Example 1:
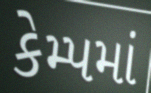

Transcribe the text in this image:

કેમ્પમાં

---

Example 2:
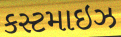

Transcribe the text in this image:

કસ્ટમાઇઝ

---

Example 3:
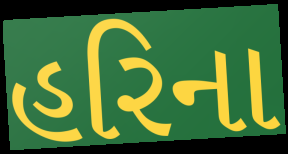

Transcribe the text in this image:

હરિના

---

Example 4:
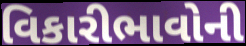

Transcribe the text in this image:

વિકારીભાવોની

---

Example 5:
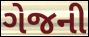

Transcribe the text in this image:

ગેજની